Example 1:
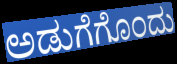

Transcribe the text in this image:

ಅಡುಗೆಗೊಂದು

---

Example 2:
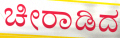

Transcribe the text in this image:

ಚೀರಾಡಿದ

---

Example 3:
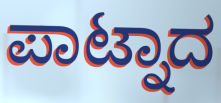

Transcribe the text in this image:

ಪಾಟ್ನಾದ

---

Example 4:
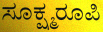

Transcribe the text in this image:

ಸೂಕ್ಷ್ಮರೂಪಿ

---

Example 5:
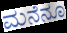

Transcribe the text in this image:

ಮನೆನೂ